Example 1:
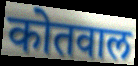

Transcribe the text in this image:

कोतवाल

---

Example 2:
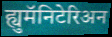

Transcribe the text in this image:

ह्युमॅनिटेरिअन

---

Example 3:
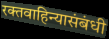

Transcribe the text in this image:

रक्तवाहिन्यासंबंधी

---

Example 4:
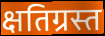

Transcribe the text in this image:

क्षतिग्रस्त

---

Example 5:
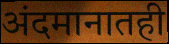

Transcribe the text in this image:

अंदमानातही